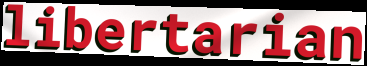
libertarian